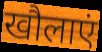
खौलाएं